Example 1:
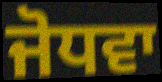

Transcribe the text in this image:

ਜੋਧਵਾ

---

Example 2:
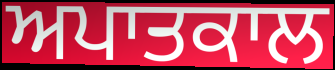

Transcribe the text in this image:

ਅਪਾਤਕਾਲ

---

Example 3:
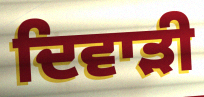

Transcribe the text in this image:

ਦਿਵਾੜੀ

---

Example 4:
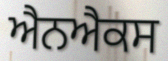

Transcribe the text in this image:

ਐਨਐਕਸ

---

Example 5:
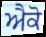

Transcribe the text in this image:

ਐਕੋ